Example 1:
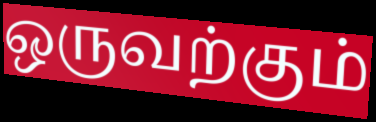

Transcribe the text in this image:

ஒருவற்கும்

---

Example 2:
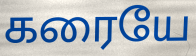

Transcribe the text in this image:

கரையே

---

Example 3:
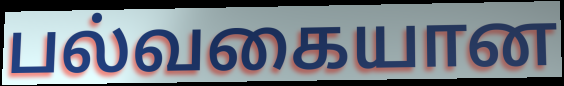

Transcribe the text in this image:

பல்வகையான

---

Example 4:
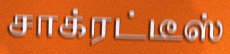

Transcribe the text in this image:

சாக்ரட்டீஸ்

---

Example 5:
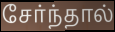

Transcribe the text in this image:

சேர்ந்தால்